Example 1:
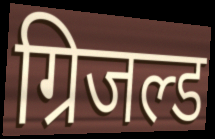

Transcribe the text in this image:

ग्रिजल्ड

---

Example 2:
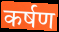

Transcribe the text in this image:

कर्षण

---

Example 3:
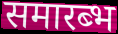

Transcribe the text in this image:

समारब्भ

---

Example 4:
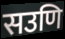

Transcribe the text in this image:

सउणि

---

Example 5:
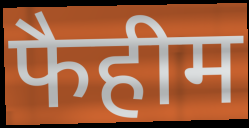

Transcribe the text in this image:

फैहीम